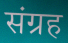
संग्रह